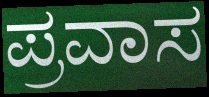
ಪ್ರವಾಸ